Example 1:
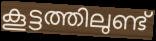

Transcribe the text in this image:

കൂട്ടത്തിലുണ്ട്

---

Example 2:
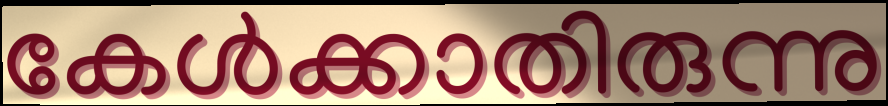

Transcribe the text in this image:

കേൾക്കാതിരുന്നു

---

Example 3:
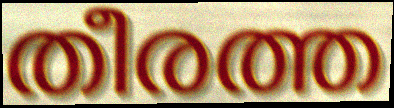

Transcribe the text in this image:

തീരത്ത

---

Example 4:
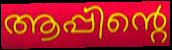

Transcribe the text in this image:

ആൎപ്പിന്റെ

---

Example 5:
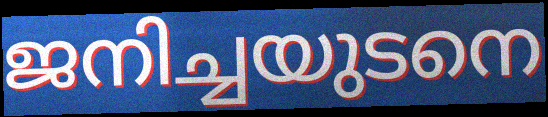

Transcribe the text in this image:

ജനിച്ചയുടനെ